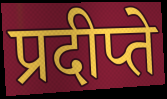
प्रदीप्ते